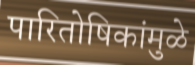
पारितोषिकांमुळे